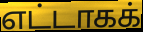
எட்டாகக்